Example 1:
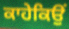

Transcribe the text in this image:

ਕਾਹੇਕਿਉਂ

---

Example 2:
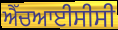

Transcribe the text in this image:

ਐੱਚਆਈਸੀਸੀ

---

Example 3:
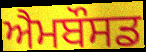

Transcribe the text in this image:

ਐਮਬੌਸਡ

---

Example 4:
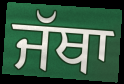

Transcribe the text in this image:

ਜੱਥਾ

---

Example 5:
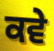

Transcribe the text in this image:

ਕਵੇ